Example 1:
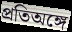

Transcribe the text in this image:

প্রতিঅঙ্গে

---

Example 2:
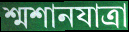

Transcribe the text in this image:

শ্মশানযাত্রা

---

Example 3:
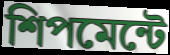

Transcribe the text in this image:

শিপমেন্টে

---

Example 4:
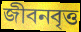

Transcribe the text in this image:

জীবনবৃত্ত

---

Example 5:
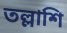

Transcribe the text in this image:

তল্লাশি